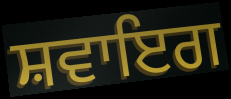
ਸ਼ਵਾਇਗ